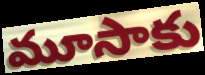
మూసాకు